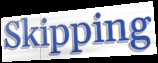
Skipping